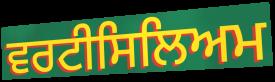
ਵਰਟੀਸਿਲਿਅਮ